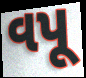
વપૂ